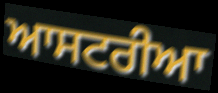
ਆਸਟਰੀਆ